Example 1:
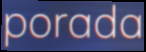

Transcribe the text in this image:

porada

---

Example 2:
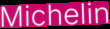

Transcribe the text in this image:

Michelin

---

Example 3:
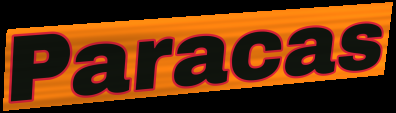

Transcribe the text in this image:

Paracas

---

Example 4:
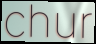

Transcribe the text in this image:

chur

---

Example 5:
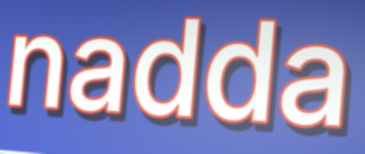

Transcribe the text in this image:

nadda